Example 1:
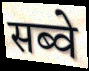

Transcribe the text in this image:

सब्वे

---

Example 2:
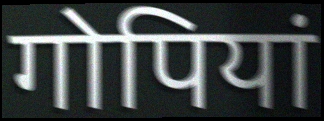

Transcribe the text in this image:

गोपियां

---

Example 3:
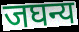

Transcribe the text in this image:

जघन्य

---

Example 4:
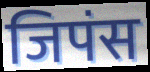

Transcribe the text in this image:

जिपंस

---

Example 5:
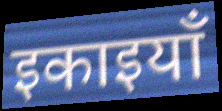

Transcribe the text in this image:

इकाइयाँ